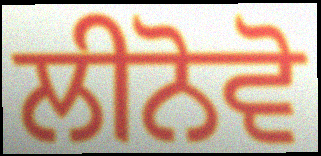
ਲੀਨੋਵੋ